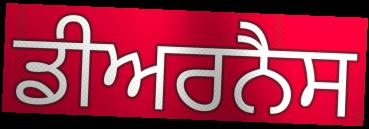
ਡੀਅਰਨੈਸ